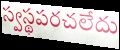
స్వస్థపరచలేదు